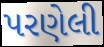
પરણેલી